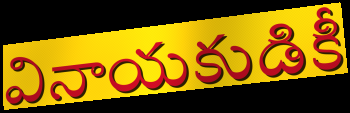
వినాయకుడికీ